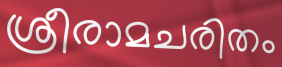
ശ്രീരാമചരിതം